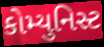
કોમ્યુનિસ્ટ